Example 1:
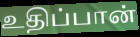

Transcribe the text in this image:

உதிப்பான்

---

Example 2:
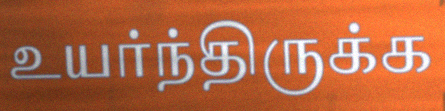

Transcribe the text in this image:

உயர்ந்திருக்க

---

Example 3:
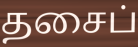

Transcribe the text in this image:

தசைப்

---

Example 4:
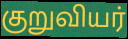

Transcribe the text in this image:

குறுவியர்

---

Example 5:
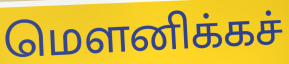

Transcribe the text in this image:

மௌனிக்கச்